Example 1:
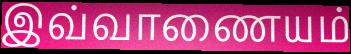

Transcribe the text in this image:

இவ்வாணையம்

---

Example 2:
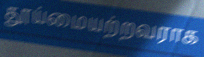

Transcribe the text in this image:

தூய்மையற்றவராக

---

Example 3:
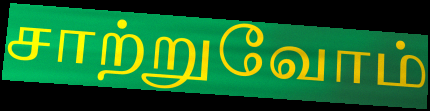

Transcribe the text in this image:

சாற்றுவோம்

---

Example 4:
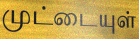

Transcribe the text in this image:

முட்டையுள்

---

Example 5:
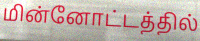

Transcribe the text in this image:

மின்னோட்டத்தில்